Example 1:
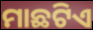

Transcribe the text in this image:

ମାଛଟିଏ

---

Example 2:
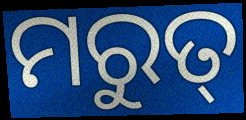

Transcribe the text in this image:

ମରୁତ୍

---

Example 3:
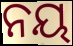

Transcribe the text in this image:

ନୟ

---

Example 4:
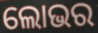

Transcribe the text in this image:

ଲୋଭର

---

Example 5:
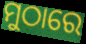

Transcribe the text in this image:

ମୁଠାରେ